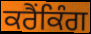
ਕਰੈਂਕਿੰਗ